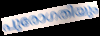
പുരോഗതിയും